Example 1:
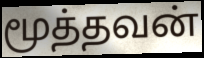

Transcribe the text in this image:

மூத்தவன்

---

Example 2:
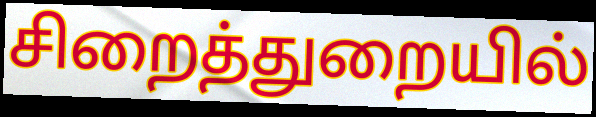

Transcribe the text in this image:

சிறைத்துறையில்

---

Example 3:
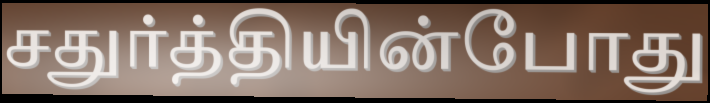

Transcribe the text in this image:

சதுர்த்தியின்போது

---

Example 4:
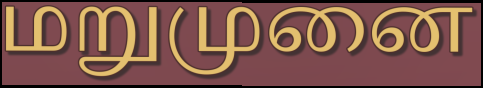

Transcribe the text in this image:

மறுமுனை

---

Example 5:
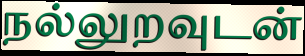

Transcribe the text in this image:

நல்லுறவுடன்